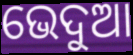
ଭେଦୁଆ